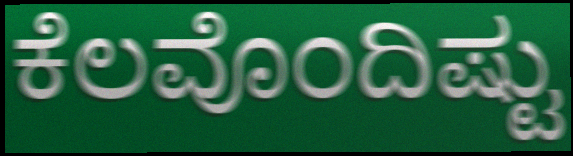
ಕೆಲವೊಂದಿಷ್ಟು